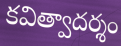
కవిత్వాదర్శం